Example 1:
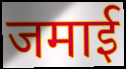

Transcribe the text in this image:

जमाई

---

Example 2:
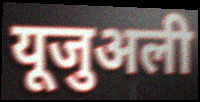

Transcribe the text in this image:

यूजुअली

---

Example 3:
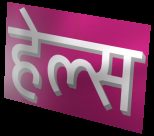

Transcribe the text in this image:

हेल्स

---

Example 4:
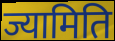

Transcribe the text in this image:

ज्यामिति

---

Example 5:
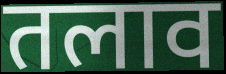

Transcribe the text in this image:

तलाव